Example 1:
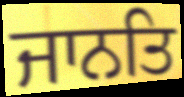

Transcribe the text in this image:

ਜਾਨਤਿ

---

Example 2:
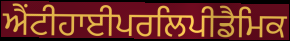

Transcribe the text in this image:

ਐਂਟੀਹਾਈਪਰਲਿਪੀਡੈਮਿਕ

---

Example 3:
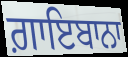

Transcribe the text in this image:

ਗ਼ਾਇਬਾਨਾ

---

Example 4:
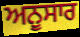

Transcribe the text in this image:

ਅਨੂਸਾਰ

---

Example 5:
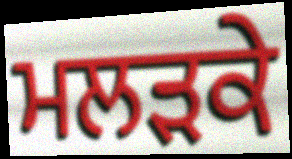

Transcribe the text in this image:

ਮਲੜਕੇ